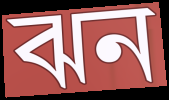
ঝন